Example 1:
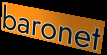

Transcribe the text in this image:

baronet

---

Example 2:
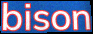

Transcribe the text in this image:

bison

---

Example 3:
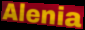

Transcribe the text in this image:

Alenia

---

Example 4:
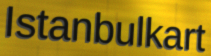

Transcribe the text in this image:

Istanbulkart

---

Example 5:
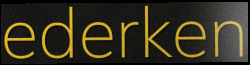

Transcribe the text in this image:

ederken